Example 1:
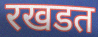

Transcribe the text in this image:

रखडत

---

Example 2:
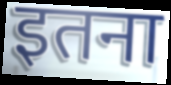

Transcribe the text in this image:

इतना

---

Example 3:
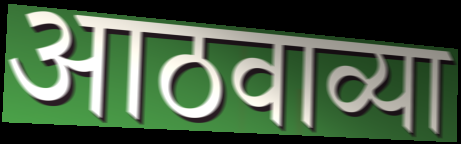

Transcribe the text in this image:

आठवाव्या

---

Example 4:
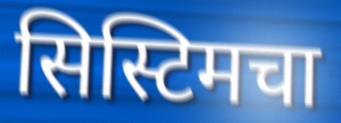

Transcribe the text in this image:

सिस्टिमचा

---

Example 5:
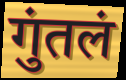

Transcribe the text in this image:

गुंतलं